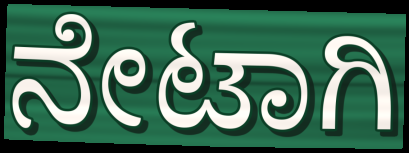
ನೇಟಾಗಿ